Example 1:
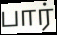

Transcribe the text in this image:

பார்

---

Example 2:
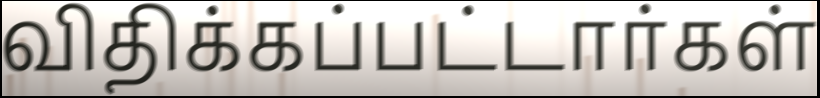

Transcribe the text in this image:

விதிக்கப்பட்டார்கள்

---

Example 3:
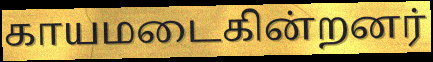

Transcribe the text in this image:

காயமடைகின்றனர்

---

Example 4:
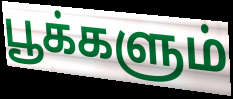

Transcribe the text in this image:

பூக்களும்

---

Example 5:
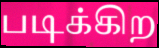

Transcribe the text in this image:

படிக்கிற